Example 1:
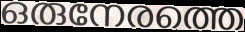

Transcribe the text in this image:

ഒരുനേരത്തെ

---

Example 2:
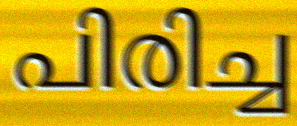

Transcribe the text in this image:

പിരിച്ച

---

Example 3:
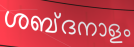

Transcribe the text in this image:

ശബ്ദനാളം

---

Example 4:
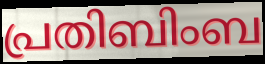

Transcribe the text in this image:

പ്രതിബിംബ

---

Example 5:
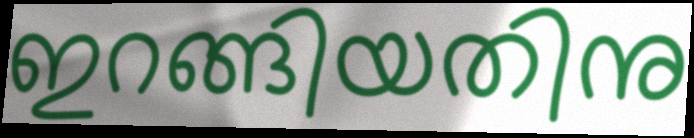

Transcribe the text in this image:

ഇറങ്ങിയതിനു